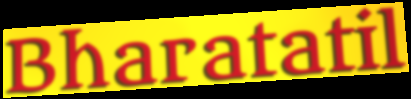
Bharatatil